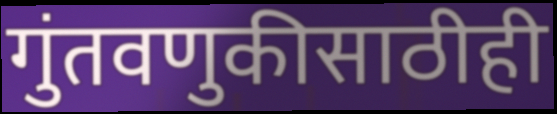
गुंतवणुकीसाठीही